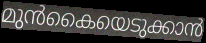
മുൻകൈയെടുക്കാൻ